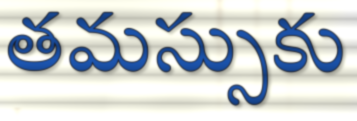
తమస్సుకు